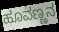
ಹೂವಣ್ಣನ